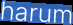
harum